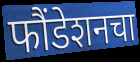
फौंडेशनचा